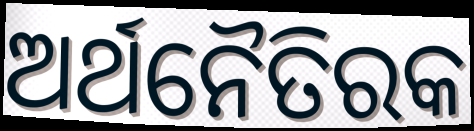
ଅର୍ଥନୈତିରକ